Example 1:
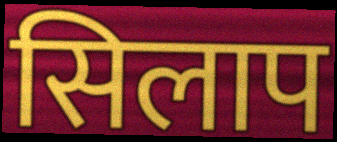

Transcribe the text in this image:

सिलाप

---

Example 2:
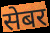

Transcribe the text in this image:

सेबर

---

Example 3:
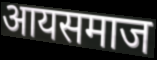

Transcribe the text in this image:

आयसमाज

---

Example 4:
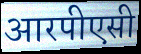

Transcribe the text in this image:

आरपीएसी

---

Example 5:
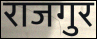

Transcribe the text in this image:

राजगुर